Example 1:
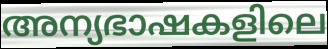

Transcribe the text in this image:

അന്യഭാഷകളിലെ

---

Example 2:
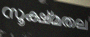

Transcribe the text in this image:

സൂക്ഷ്മതല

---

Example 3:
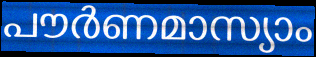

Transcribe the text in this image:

പൗർണമാസ്യാം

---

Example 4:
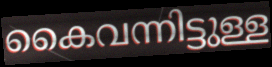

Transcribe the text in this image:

കൈവന്നിട്ടുള്ള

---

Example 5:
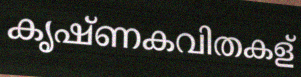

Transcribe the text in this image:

കൃഷ്ണകവിതകള്